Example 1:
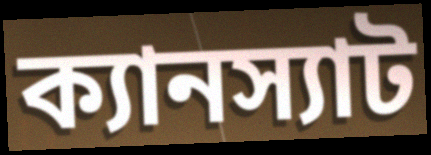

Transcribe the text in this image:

ক্যানস্যাট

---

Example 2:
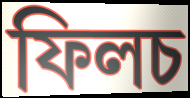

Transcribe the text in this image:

ফিলচ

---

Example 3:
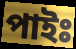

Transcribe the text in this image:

পাইঃ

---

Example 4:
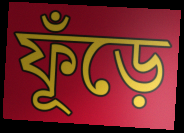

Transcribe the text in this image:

ফূঁড়ে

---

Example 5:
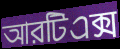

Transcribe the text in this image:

আরটিএক্স